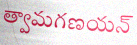
త్వామగణయన్